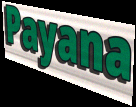
Payana